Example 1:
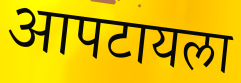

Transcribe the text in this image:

आपटायला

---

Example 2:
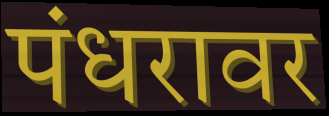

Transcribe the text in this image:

पंधरावर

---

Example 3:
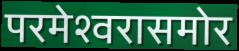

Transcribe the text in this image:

परमेश्वरासमोर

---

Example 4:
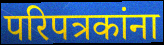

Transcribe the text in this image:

परिपत्रकांना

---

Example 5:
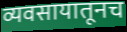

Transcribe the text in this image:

व्यवसायातूनच